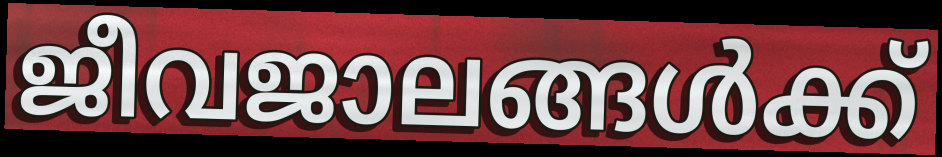
ജീവജാലങ്ങൾക്ക്